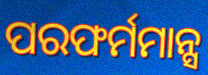
ପରଫର୍ମମାନ୍ସ